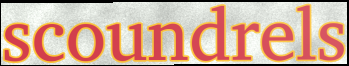
scoundrels